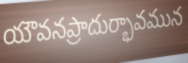
యౌవనప్రాదుర్భావమున